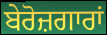
ਬੇਰੋਜ਼ਗਾਰਾਂ